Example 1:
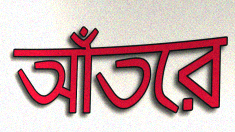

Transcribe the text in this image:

আঁতরে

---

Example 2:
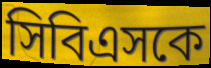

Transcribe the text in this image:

সিবিএসকে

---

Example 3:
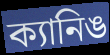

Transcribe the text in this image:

ক্যানিঙ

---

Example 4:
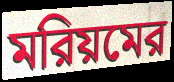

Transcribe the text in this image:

মরিয়মের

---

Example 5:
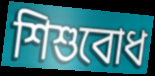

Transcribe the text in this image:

শিশুবোধ